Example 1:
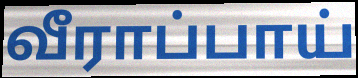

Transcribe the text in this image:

வீராப்பாய்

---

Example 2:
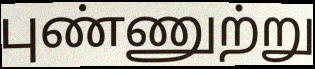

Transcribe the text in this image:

புண்ணுற்று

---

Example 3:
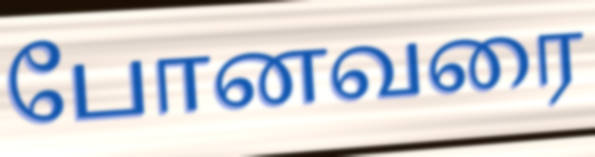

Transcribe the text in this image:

போனவரை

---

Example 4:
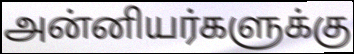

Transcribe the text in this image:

அன்னியர்களுக்கு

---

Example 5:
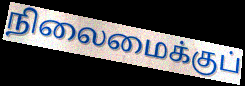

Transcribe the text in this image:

நிலைமைக்குப்